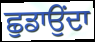
ਛੁਡਾਉਂਦਾ